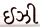
ઈઝી